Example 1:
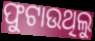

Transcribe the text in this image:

ଫୁଟାଉଥିଲୁ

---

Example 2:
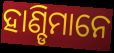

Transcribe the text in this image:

ହାଣ୍ଡିମାନେ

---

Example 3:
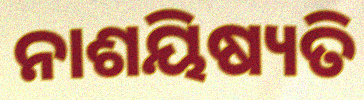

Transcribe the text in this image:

ନାଶୟିଷ୍ୟତି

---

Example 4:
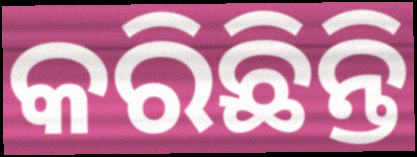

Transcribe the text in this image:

କରିଛିନ୍ତି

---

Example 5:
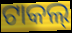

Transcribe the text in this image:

ଟାକଲ୍